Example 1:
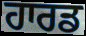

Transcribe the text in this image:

ਹਾਰਡ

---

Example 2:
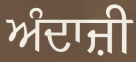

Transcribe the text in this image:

ਅੰਦਾਜ਼ੀ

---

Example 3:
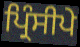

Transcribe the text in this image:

ਪ੍ਰਿੰਸੀਪੇ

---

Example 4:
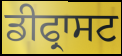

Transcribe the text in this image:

ਡੀਫ੍ਰਾਸਟ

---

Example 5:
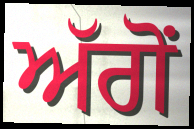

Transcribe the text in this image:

ਅੱਗੋਂ